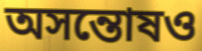
অসন্তোষও